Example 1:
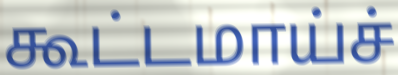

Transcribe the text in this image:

கூட்டமாய்ச்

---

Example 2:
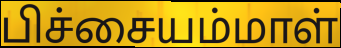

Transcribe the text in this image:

பிச்சையம்மாள்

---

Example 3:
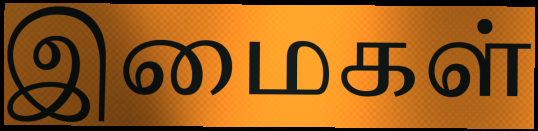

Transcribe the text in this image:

இமைகள்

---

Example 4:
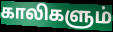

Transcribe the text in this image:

காலிகளும்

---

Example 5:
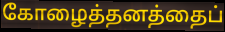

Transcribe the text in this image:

கோழைத்தனத்தைப்